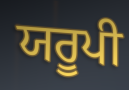
ਯਰੂਪੀ